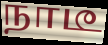
நாடீ